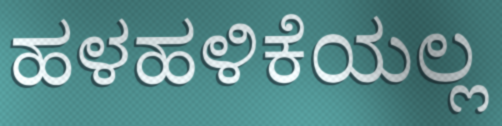
ಹಳಹಳಿಕೆಯಲ್ಲ